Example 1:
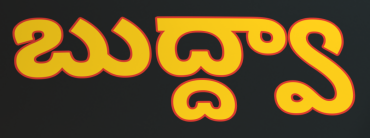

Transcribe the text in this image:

బుద్ద్వా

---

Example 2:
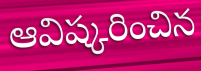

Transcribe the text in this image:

ఆవిష్కరించిన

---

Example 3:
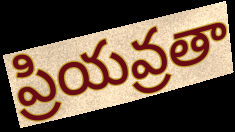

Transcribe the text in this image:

ప్రియవ్రతా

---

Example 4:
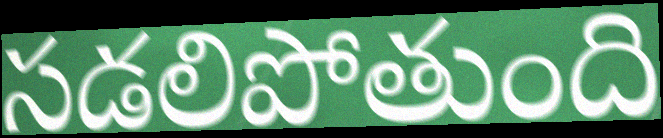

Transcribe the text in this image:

సడలిపోతుంది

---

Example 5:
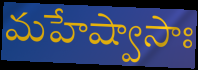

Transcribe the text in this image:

మహేష్వాసాః